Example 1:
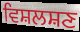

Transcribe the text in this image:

ਵਿਸ਼ਲਸ਼ਣ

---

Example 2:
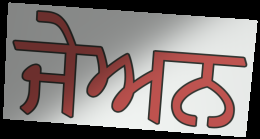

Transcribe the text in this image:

ਜੇਅਨ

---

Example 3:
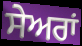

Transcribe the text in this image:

ਸੇਅਰਾਂ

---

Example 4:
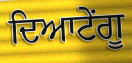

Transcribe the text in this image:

ਦਿਆਟੇਂਗੂ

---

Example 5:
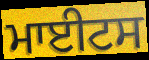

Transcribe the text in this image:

ਮਾਈਟਸ